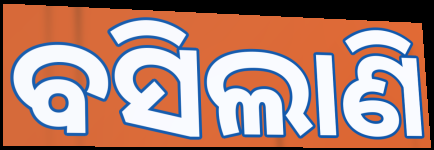
ବସିଲାଣି